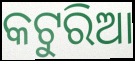
କଟୁରିଆ